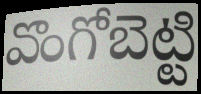
వొంగోబెట్టి